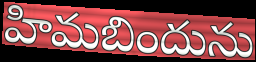
హిమబిందును